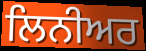
ਲਿਨੀਅਰ